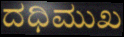
ದಧಿಮುಖ